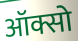
ऑक्सो